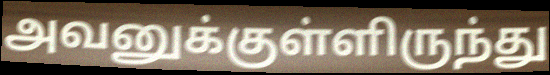
அவனுக்குள்ளிருந்து